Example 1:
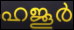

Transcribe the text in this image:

ഹജൂർ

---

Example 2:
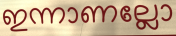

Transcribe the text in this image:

ഇന്നാണല്ലോ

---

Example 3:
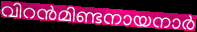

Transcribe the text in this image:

വിറൻമിണ്ടനായനാർ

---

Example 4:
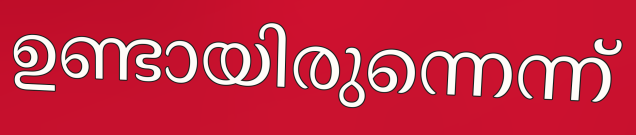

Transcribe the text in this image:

ഉണ്ടായിരുന്നെന്ന്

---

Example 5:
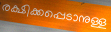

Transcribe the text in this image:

രക്ഷിക്കപ്പെടാനുള്ള